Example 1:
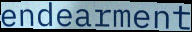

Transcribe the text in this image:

endearment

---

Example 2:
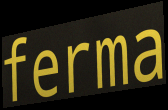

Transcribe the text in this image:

ferma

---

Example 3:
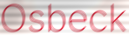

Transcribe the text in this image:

Osbeck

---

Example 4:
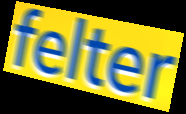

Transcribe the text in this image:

felter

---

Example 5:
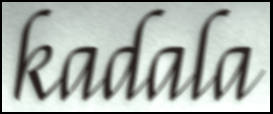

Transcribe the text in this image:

kadala